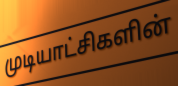
முடியாட்சிகளின்